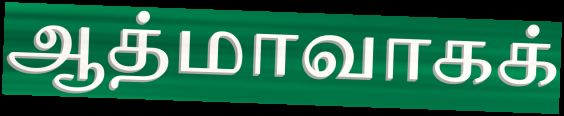
ஆத்மாவாகக்